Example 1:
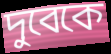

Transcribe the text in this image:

দুবেকে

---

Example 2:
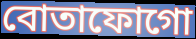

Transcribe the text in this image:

বোতাফোগো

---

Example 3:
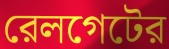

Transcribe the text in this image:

রেলগেটের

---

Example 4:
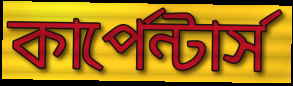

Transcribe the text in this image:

কার্পেন্টার্স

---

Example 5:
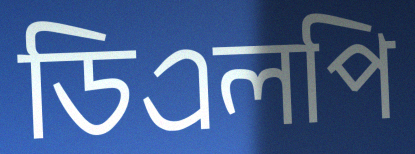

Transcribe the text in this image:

ডিএলপি